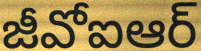
జీవోఐఆర్